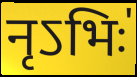
नृऽभिः॑